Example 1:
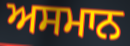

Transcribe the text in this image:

ਅਸਮਾਨ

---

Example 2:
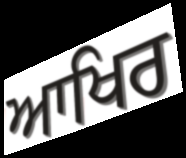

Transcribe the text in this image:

ਆਖਿਰ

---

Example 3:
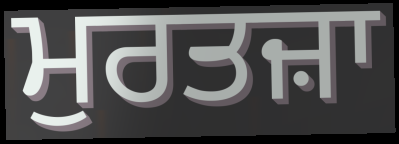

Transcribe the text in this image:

ਮੁਰਤਜ਼ਾ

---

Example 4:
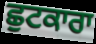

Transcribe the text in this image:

ਛੁਟਕਾਰਾ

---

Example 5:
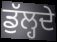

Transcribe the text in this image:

ਡੁੱਲ੍ਹਦੇ